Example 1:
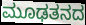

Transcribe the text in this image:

ಮೂಢತನದ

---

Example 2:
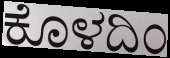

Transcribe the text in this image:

ಕೊಳದಿಂ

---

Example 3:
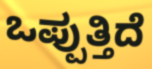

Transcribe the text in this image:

ಒಪ್ಪುತ್ತಿದೆ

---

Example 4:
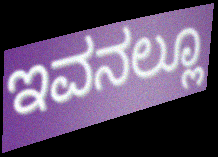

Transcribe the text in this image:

ಇವನಲ್ಲೂ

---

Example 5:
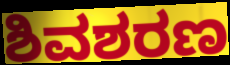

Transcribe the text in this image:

ಶಿವಶರಣ